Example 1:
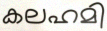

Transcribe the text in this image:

കലഹമി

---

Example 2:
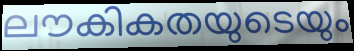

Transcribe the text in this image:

ലൗകികതയുടെയും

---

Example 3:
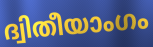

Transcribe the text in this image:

ദ്വിതീയാംഗം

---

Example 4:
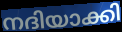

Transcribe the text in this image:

നദിയാക്കി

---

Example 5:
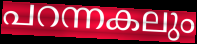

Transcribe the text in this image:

പറന്നകലും